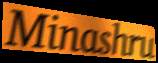
Minashru